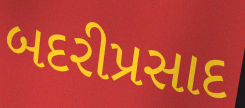
બદરીપ્રસાદ